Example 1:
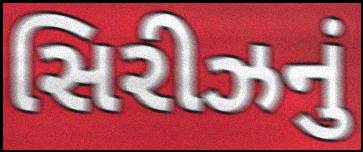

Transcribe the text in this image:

સિરીઝનું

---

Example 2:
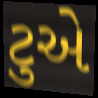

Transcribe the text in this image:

ટુએ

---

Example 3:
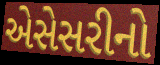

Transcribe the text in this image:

એસેસરીનો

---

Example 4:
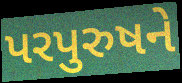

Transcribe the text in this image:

પરપુરુષને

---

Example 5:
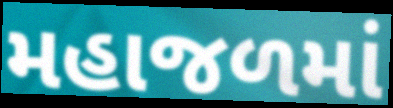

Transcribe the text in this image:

મહાજળમાં